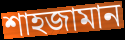
শাহজামান